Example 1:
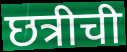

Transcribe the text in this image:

छत्रीची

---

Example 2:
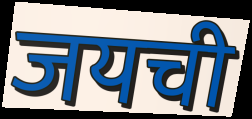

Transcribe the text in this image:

जयची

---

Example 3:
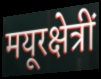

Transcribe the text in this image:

मयूरक्षेत्रीं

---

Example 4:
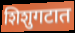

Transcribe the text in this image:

शिशुगटात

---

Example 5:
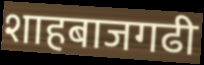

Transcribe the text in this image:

शाहबाजगढी